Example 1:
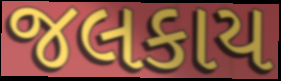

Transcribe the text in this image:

જલકાય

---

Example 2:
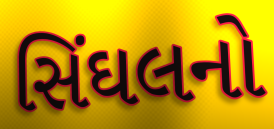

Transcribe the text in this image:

સિંઘલનો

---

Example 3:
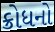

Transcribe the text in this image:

ક્રોધનો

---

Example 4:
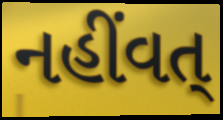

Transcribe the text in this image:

નહીંવત્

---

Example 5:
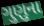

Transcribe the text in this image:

ગુણુના